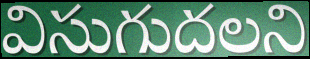
విసుగుదలని